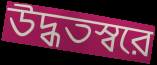
উদ্ধতস্বরে